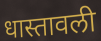
धास्तावली